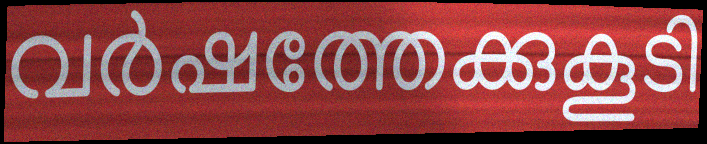
വർഷത്തേക്കുകൂടി